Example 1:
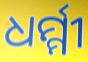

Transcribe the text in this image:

ଧର୍ମ୍ମୀ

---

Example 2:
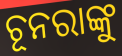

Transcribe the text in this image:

ଚୂନରାଙ୍କୁ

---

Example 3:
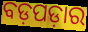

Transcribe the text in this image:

ବଡ଼ପଡ଼ାର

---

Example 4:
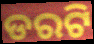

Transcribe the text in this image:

ଡରଟି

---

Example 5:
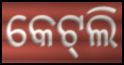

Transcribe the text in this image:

କେଟ୍‌ଲି